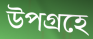
উপগ্রহে